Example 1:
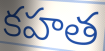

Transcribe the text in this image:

కహత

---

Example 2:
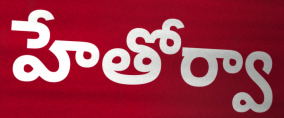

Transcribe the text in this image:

హేతోర్వా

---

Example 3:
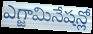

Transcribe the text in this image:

ఎగ్జామినేషన్లో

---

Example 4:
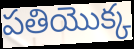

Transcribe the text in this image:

పతియొక్క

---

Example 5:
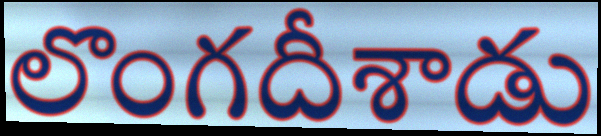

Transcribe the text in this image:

లొంగదీశాడు